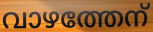
വാഴത്തേന്